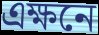
এক্ষনে